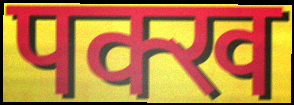
पक्ख